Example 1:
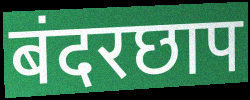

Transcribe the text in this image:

बंदरछाप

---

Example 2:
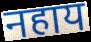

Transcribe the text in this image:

नहाय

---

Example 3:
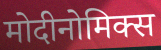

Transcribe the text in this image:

मोदीनोमिक्स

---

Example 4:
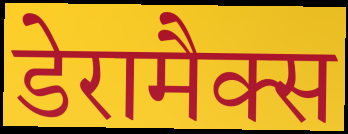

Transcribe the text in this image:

डेरामैक्स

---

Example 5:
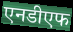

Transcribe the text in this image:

एनडीएफ